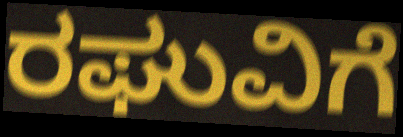
ರಘುವಿಗೆ